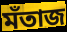
মঁতাজ